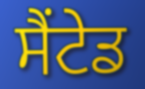
ਸੈਂਟੇਡ